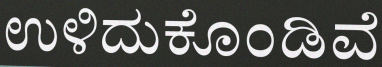
ಉಳಿದುಕೊಂಡಿವೆ